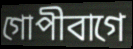
গোপীবাগে